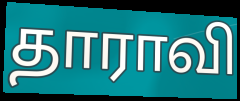
தாராவி